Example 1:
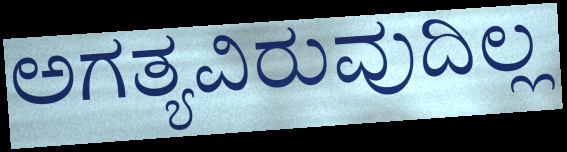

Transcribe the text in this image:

ಅಗತ್ಯವಿರುವುದಿಲ್ಲ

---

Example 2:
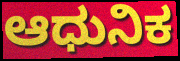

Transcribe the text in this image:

ಆಧುನಿಕ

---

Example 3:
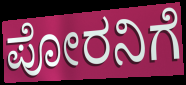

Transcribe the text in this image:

ಪೋರನಿಗೆ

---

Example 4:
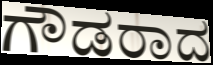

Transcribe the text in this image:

ಗೌಡರಾದ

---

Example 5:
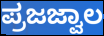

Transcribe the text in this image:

ಪ್ರಜಜ್ವಾಲ